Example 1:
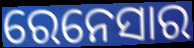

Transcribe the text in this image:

ରେନେସାର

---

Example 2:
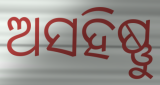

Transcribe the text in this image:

ଅସହିଷ୍ଣୁ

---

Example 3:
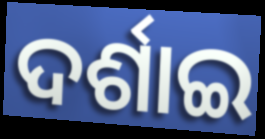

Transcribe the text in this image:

ଦର୍ଶାଇ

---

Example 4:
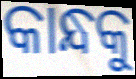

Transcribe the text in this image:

କାନ୍ଧକୁ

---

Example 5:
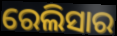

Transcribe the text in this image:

ରେଲିସାର